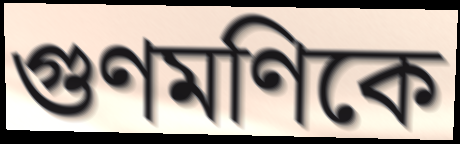
গুণমণিকে